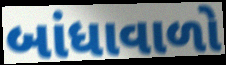
બાંધાવાળો